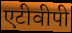
एटीवीपी